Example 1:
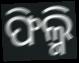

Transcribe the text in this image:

ଫିଲ୍ମି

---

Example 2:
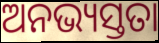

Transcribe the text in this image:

ଅନଭ୍ୟସ୍ତତା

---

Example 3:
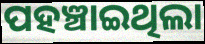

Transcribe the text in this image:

ପହଞ୍ଚାଇଥିଲା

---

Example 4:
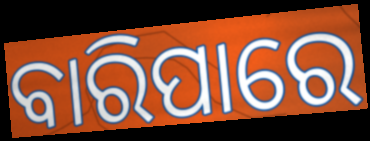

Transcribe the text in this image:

ବାରିପାରେ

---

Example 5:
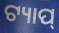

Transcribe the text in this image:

ଟ୍ୟାପ୍